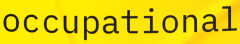
occupational